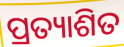
ପ୍ରତ୍ୟାଶିତ